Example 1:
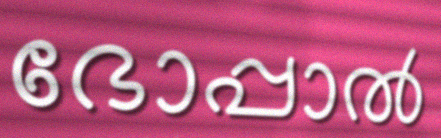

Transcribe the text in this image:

ഭോപ്പാൽ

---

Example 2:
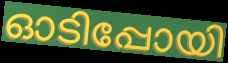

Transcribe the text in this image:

ഓടിപ്പോയി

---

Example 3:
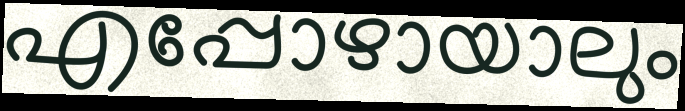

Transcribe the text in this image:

എപ്പോഴായാലും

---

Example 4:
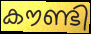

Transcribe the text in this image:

കൗണ്ടി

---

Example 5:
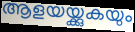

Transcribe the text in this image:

ആളയയ്ക്കുകയും